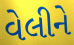
વેલીને